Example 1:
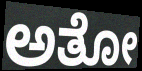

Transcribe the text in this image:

ಅತೋ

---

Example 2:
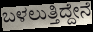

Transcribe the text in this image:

ಬಳಲುತ್ತಿದ್ದೇನೆ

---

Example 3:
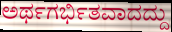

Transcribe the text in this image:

ಅರ್ಥಗರ್ಭಿತವಾದದ್ದು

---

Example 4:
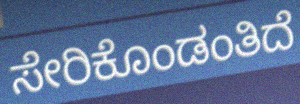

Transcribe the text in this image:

ಸೇರಿಕೊಂಡಂತಿದೆ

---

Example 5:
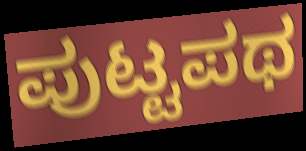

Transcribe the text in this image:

ಪುಟ್ಟಪಥ